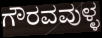
ಗೌರವವುಳ್ಳ